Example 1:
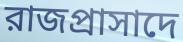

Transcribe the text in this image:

রাজপ্রাসাদে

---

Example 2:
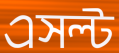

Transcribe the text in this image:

এসল্ট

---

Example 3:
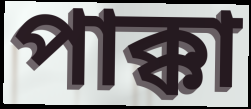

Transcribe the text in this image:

পাক্কা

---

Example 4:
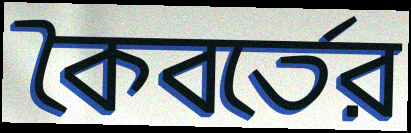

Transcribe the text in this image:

কৈবর্তের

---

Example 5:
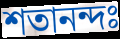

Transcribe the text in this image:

শতানন্দঃ